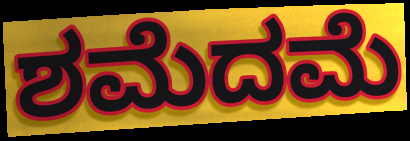
ಶಮೆದಮೆ